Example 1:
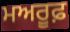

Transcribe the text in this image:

ਮਅਰੂਫ਼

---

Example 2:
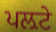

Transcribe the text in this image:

ਪਲ਼ਟੇ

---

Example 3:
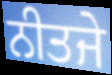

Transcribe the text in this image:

ਨੀਤਜੇ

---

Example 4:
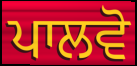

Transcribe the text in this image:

ਪਾਲਵੋ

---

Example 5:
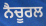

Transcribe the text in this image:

ਨੈਚੂਰਲ